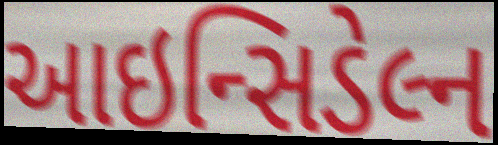
આઇન્સિડેલ્ન